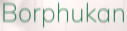
Borphukan